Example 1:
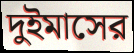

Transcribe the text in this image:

দুইমাসের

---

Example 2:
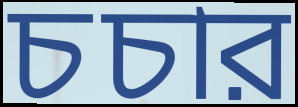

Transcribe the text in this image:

চচার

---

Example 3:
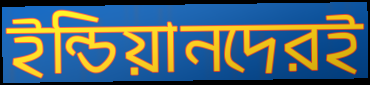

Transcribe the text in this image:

ইন্ডিয়ানদেরই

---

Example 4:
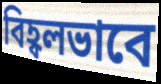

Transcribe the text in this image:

বিহ্বলভাবে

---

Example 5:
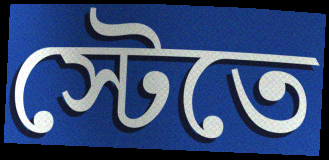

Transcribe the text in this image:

স্টেতে